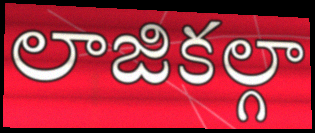
లాజికల్గా